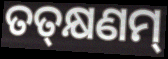
ତତ୍‌କ୍ଷଣମ୍